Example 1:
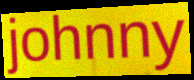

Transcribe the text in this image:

johnny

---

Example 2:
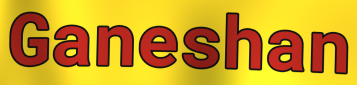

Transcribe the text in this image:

Ganeshan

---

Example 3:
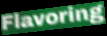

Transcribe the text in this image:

Flavoring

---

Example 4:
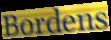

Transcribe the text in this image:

Bordens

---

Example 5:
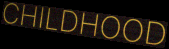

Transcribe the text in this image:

CHILDHOOD